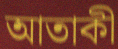
আতাকী